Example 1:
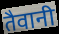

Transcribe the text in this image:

तैवानी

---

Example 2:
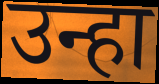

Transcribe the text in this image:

उन्हा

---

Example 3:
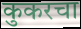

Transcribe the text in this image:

कुकरचा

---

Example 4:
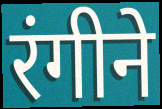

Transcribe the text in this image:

रंगीने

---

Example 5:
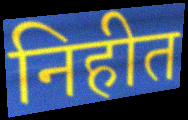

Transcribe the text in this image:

निहीत